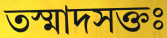
তস্মাদসক্তঃ